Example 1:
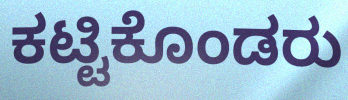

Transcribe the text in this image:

ಕಟ್ಟಿಕೊಂಡರು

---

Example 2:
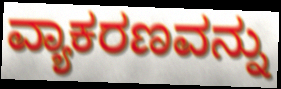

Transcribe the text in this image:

ವ್ಯಾಕರಣವನ್ನು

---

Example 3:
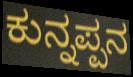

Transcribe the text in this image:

ಕುನ್ನಪ್ಪನ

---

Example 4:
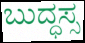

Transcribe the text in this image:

ಬುದ್ಧಸ್ಸ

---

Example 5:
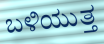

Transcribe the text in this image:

ಬಳಿಯುತ್ತ